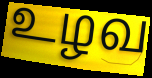
உழவ